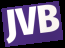
JVB